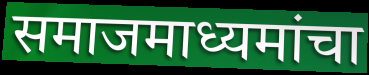
समाजमाध्यमांचा